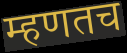
म्हणतच